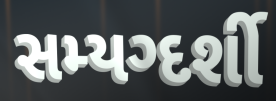
સમ્યગ્દર્શી